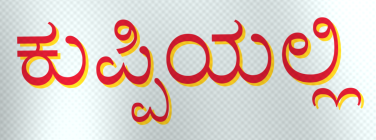
ಕುಪ್ಪಿಯಲ್ಲಿ